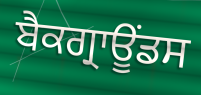
ਬੈਕਗ੍ਰਾਊਂਡਸ